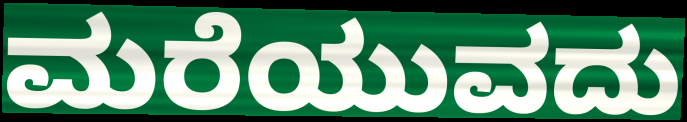
ಮರೆಯುವದು